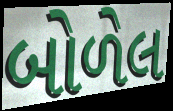
બોળેલ